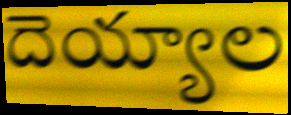
దెయ్యాల